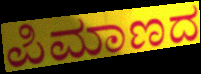
ಪಿಮಾಣದ